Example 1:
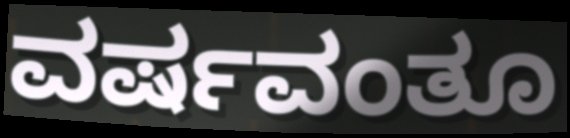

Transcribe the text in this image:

ವರ್ಷವಂತೂ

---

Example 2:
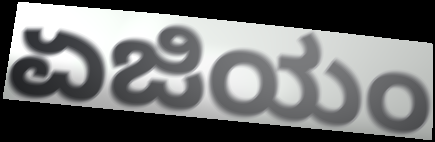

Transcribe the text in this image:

ಏಜಿಯಂ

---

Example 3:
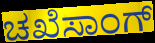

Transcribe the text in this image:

ಚಖೆಸಾಂಗ್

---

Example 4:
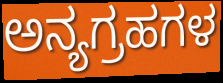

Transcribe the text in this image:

ಅನ್ಯಗ್ರಹಗಳ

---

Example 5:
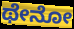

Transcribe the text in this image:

ಥೇನೋ